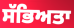
ਸੱਭਿਅਤਾ